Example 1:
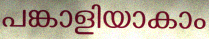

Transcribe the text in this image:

പങ്കാളിയാകാം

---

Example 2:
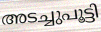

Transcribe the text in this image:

അടച്ചുപൂട്ടി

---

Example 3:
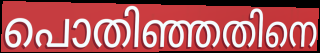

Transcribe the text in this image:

പൊതിഞ്ഞതിനെ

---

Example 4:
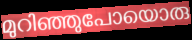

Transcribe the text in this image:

മുറിഞ്ഞുപോയൊരു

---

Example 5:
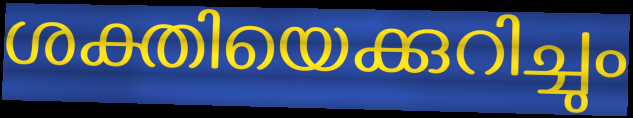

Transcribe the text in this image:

ശക്തിയെക്കുറിച്ചും